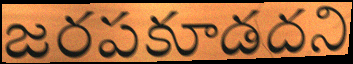
జరపకూడదని